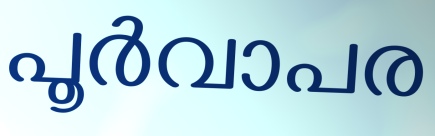
പൂർവാപര